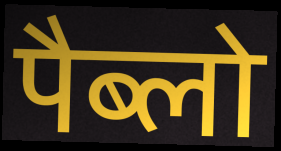
पैब्लो